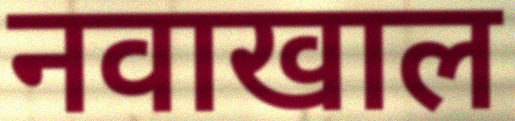
नवाखाल